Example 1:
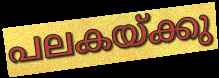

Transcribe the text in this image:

പലകയ്ക്കു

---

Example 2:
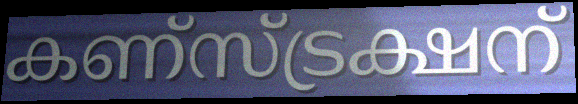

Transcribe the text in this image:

കണ്സ്ട്രക്ഷന്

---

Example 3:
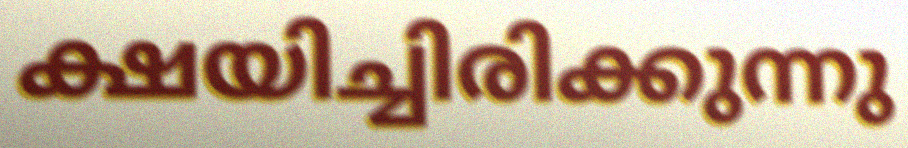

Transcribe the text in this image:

ക്ഷയിച്ചിരിക്കുന്നു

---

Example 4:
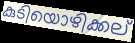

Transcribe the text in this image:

കുടിയൊഴിക്കല്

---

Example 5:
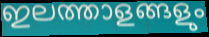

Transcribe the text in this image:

ഇലത്താളങ്ങളും